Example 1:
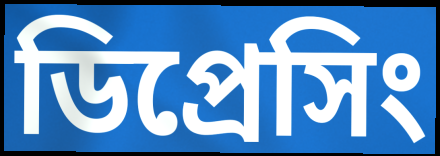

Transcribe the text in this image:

ডিপ্রেসিং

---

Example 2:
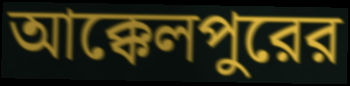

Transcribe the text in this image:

আক্কেলপুরের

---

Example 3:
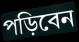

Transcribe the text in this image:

পড়িবেন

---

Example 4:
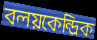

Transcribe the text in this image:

বলয়কেন্দ্রিক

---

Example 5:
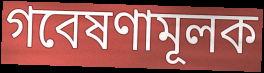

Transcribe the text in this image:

গবেষণামূলক